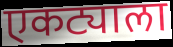
एकट्याला